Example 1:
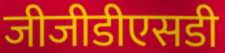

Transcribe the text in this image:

जीजीडीएसडी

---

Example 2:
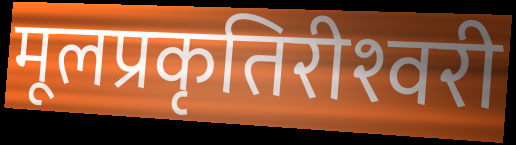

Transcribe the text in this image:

मूलप्रकृतिरीश्वरी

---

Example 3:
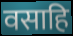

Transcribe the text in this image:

वसाहि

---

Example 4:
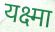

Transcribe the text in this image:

यक्ष्मा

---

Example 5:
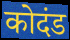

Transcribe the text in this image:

कोदंड